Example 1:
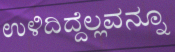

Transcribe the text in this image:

ಉಳಿದಿದ್ದೆಲ್ಲವನ್ನೂ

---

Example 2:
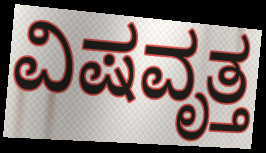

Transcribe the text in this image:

ವಿಷವೃತ್ತ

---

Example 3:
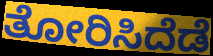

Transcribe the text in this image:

ತೋರಿಸಿದೆಡೆ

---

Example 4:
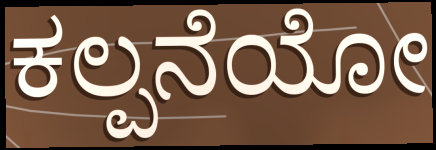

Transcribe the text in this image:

ಕಲ್ಪನೆಯೋ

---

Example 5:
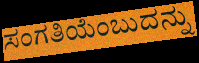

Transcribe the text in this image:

ಸಂಗತಿಯೆಂಬುದನ್ನು